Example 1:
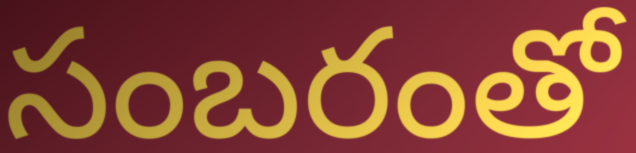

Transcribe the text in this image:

సంబరంతో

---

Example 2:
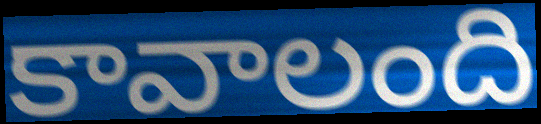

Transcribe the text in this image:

కావాలంది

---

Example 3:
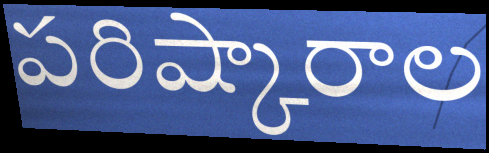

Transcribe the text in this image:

పరిష్కారాల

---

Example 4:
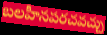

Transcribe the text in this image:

బలహీనపరచవచ్చు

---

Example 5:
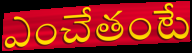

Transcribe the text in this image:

ఎంచేతంటే